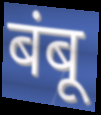
बंबू